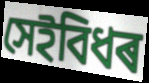
সেইবিধৰ